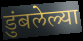
डुंबलेल्या